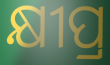
କ୍ଷୀପ୍ର